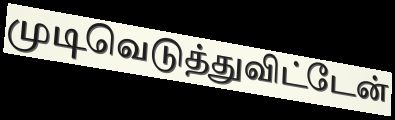
முடிவெடுத்துவிட்டேன்